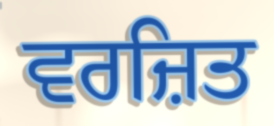
ਵਰਜ਼ਿਤ